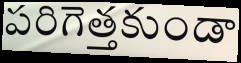
పరిగెత్తకుండా